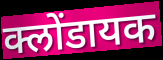
क्लोंडायक